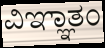
ವಿಞ್ಞಾತಂ